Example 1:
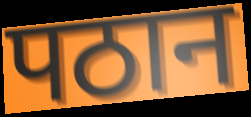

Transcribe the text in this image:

पठान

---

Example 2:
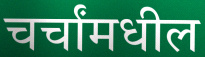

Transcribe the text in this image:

चर्चांमधील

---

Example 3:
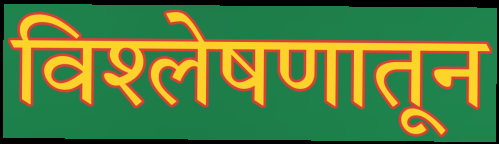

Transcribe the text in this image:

विश्लेषणातून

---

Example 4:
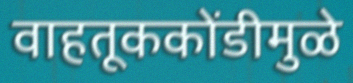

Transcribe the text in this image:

वाहतूककोंडीमुळे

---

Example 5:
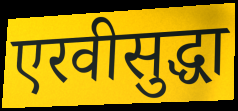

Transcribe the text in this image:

एरवीसुद्धा